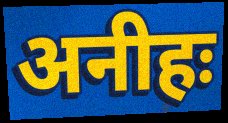
अनीहः